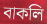
বাকলি